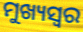
ମୁଖ୍ୟସ୍ୱର